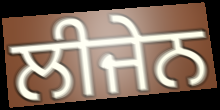
ਲੀਜੇਨ